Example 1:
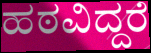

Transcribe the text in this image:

ಹಠವಿದ್ದರೆ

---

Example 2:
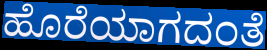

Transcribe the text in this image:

ಹೊರೆಯಾಗದಂತೆ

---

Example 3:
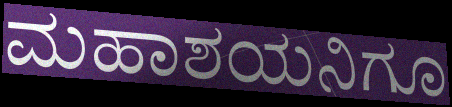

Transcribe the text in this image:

ಮಹಾಶಯನಿಗೂ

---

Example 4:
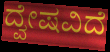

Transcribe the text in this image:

ದ್ವೇಷವಿದೆ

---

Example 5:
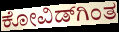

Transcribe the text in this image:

ಕೋವಿಡ್‌ಗಿಂತ